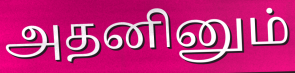
அதனினும்